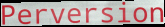
Perversion